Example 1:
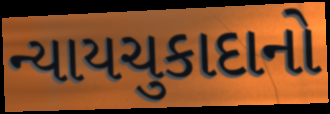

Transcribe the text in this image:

ન્યાયચુકાદાનો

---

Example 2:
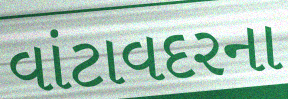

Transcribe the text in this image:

વાંટાવદરના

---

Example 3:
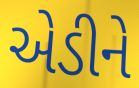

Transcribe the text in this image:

એડીને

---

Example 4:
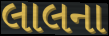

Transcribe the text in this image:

લાલના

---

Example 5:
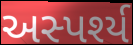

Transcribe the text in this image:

અસ્પર્શ્ય